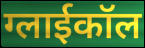
ग्लाईकॉल